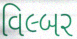
વિલ્બર